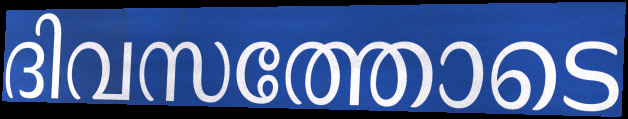
ദിവസത്തോടെ